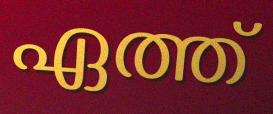
ഏത്ത്